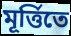
মূর্ত্তিতে